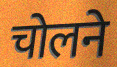
चोलने